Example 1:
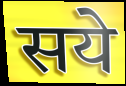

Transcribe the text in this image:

सये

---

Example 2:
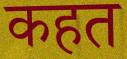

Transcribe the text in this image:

कहत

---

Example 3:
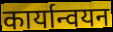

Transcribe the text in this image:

कार्यान्वयन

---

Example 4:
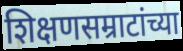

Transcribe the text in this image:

शिक्षणसम्राटांच्या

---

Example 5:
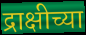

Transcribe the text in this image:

द्राक्षीच्या